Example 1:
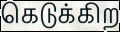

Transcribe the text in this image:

கெடுக்கிற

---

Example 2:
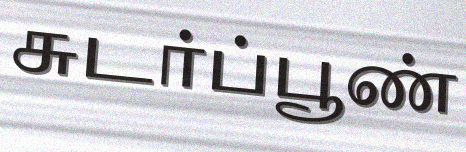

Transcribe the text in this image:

சுடர்ப்பூண்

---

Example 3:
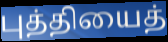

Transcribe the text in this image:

புத்தியைத்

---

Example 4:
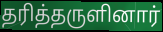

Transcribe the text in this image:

தரித்தருளினார்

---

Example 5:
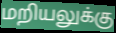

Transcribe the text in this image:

மறியலுக்கு